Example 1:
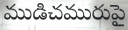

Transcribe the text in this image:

ముడిచమురుపై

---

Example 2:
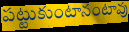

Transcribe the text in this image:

పట్టుకుంటానంటావు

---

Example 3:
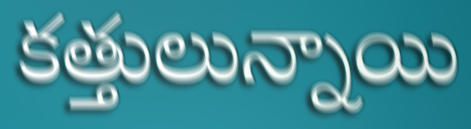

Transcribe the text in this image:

కత్తులున్నాయి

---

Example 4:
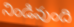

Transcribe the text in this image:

నిండివుంది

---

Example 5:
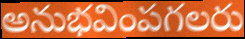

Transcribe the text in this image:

అనుభవింపగలరు